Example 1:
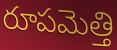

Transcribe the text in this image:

రూపమెత్తి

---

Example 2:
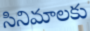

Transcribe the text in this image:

సినిమాలకు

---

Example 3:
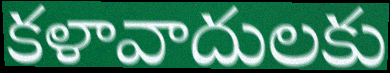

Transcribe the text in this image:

కళావాదులకు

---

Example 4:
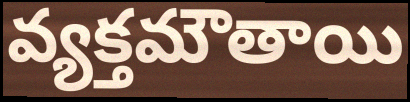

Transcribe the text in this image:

వ్యక్తమౌతాయి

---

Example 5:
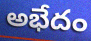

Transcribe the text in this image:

అభేదం